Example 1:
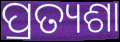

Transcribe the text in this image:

ପ୍ରତ୍ୟଶା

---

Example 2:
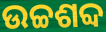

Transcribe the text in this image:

ଉଚ୍ଚଶବ୍ଦ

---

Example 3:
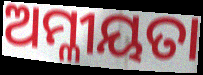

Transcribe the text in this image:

ଅମ୍ଳୀୟତା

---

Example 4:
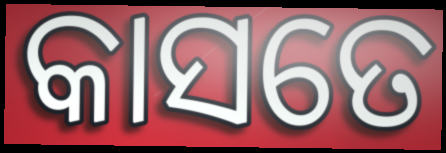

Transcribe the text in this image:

କାସତେ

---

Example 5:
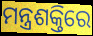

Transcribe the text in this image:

ମନ୍ତ୍ରଶକ୍ତିରେ